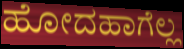
ಹೋದಹಾಗೆಲ್ಲ